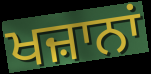
ਖਜ਼ਾਨਾਂ